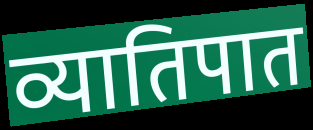
व्यातिपात